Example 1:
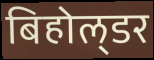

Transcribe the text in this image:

बिहोल्डर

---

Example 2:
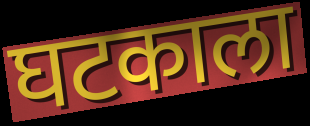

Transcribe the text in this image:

घटकाला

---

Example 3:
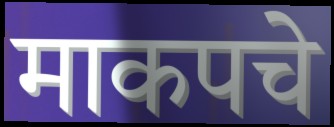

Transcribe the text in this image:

माकपचे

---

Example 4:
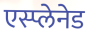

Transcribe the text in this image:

एस्प्लेनेड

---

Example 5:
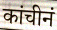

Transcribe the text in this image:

कांचीनं